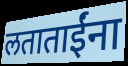
लताताईंना